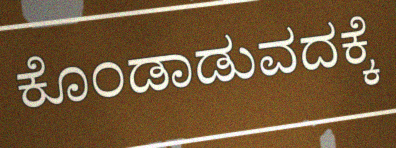
ಕೊಂಡಾಡುವದಕ್ಕೆ